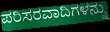
ಪರಿಸರವಾದಿಗಳನ್ನು